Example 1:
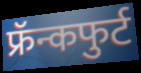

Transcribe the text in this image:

फ्रॅन्कफुर्ट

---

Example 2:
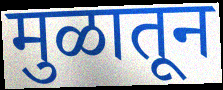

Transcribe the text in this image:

मुळातून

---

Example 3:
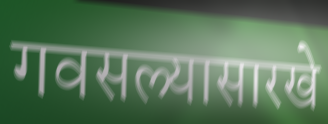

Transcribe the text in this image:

गवसल्यासारखे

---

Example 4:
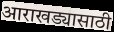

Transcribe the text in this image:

आराखड्यासाठी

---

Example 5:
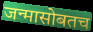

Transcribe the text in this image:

जन्मासोबतच